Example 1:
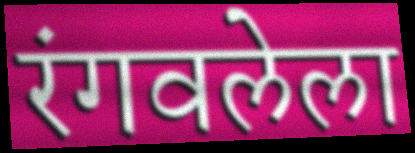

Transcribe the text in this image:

रंगवलेला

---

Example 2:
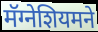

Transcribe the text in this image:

मॅग्नेशियमने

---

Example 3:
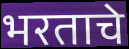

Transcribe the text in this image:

भरताचे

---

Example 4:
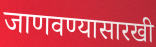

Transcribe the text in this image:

जाणवण्यासारखी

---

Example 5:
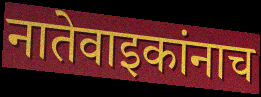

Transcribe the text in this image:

नातेवाइकांनाच